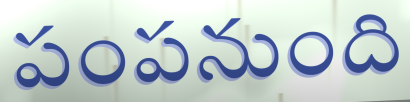
పంపనుంది